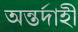
অন্তর্দাহী